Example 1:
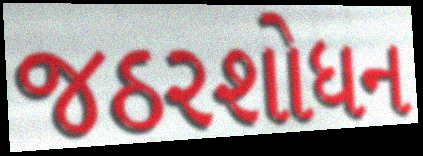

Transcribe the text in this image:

જઠરશોધન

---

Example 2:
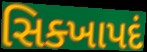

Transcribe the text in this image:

સિક્ખાપદં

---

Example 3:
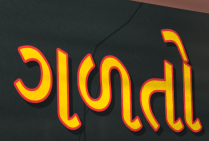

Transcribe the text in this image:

ગળતો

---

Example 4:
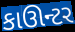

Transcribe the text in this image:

કાઊન્ટર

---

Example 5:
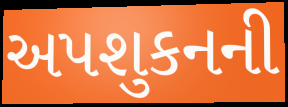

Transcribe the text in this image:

અપશુકનની